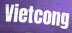
Vietcong